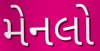
મેનલો